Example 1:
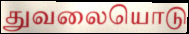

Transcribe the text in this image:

துவலையொடு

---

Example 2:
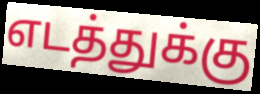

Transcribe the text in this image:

எடத்துக்கு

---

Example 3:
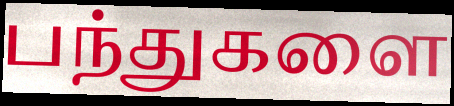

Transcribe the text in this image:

பந்துகளை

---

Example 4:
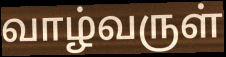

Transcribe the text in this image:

வாழ்வருள்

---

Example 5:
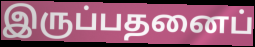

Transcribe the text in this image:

இருப்பதனைப்